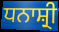
ਧਨਾਸ਼੍ਰੀ